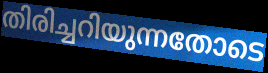
തിരിച്ചറിയുന്നതോടെ